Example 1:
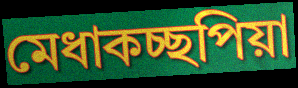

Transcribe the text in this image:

মেধাকচ্ছপিয়া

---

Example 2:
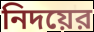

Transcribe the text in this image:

নিদয়ের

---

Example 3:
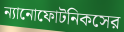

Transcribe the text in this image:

ন্যানোফোটনিকসের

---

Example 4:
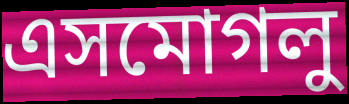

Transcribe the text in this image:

এসমোগলু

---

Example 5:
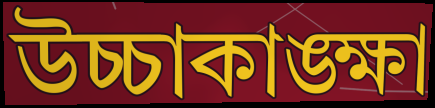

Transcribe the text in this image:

উচ্চাকাঙ্ক্ষা